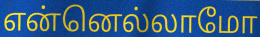
என்னெல்லாமோ